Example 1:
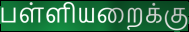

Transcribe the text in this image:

பள்ளியறைக்கு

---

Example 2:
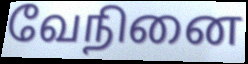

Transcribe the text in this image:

வேநினை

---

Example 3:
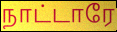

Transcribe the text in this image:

நாட்டாரே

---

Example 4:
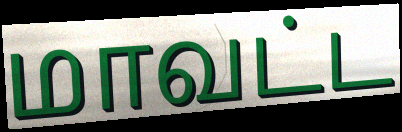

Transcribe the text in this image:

மாவட்ட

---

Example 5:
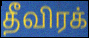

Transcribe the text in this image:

தீவிரக்